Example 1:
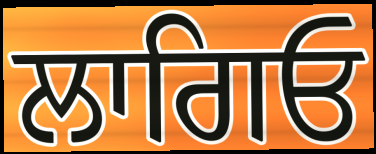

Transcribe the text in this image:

ਲਾਗਿਓ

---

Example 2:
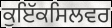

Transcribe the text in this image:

ਕੁਇੱਕਸਿਲਵਰ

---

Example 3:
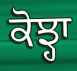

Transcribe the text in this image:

ਕੋਝ੍ਹਾ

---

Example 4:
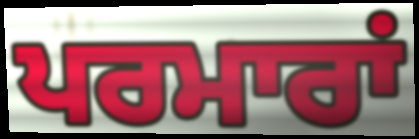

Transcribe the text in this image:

ਪਰਮਾਰਾਂ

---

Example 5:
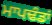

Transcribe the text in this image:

ਮਾਪਢੰਡਾਂ